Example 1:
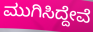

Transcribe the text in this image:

ಮುಗಿಸಿದ್ದೇವೆ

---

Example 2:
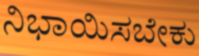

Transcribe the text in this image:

ನಿಭಾಯಿಸಬೇಕು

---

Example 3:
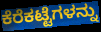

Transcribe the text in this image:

ಕೆರೆಕಟ್ಟೆಗಳನ್ನು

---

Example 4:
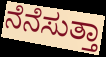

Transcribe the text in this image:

ನೆನೆಸುತ್ತಾ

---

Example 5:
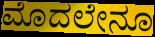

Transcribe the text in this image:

ಮೊದಲೇನೂ